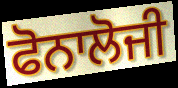
ਫੋਨਾਲੋਜੀ